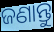
ଜଣାନ୍ତୁ